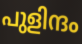
പുളിന്ദം